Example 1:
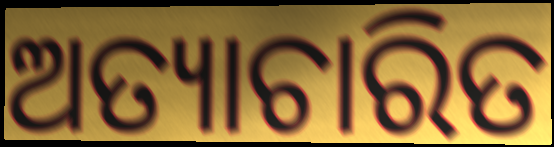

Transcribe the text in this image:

ଅତ୍ୟାଚାରିତ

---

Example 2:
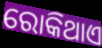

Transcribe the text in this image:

ରୋକିଥାଏ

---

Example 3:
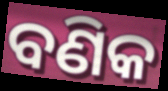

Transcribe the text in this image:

ବଣିକ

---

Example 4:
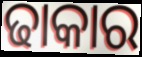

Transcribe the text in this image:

ଢାକାର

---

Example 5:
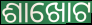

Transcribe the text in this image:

ଶାଖୋଟ